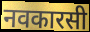
नवकारसी